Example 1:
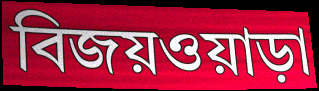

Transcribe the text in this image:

বিজয়ওয়াড়া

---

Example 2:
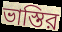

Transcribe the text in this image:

ভাস্তির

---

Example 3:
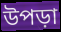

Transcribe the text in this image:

উপড়া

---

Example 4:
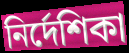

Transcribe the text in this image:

নির্দেশিকা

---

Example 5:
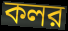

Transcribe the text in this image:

কলর